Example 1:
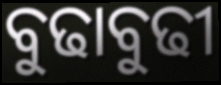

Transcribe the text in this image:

ବୁଢାବୁଢୀ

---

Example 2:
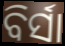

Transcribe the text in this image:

ବିର୍ସା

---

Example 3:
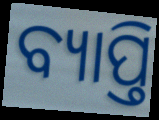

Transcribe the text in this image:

ବ୍ୟାପ୍ତି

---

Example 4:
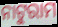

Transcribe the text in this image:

ନାଟୁରାମ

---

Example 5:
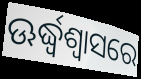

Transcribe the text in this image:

ଊର୍ଦ୍ଧ୍ୱଶ୍ୱାସରେ